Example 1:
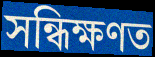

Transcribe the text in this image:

সন্ধিক্ষণত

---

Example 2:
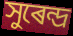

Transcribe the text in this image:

সুৰেন্দ্ৰ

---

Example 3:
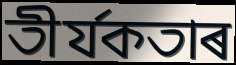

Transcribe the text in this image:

তীৰ্যকতাৰ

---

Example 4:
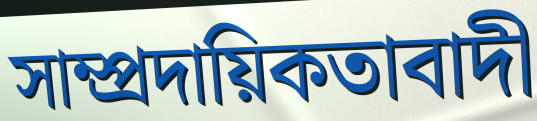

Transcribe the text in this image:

সাম্প্ৰদায়িকতাবাদী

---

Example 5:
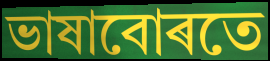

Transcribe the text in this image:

ভাষাবোৰতে